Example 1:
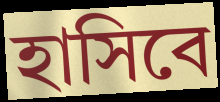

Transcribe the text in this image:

হাসিবে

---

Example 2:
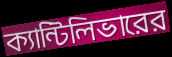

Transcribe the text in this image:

ক্যান্টিলিভারের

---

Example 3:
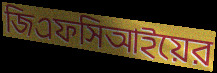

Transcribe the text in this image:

জিএফসিআইয়ের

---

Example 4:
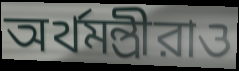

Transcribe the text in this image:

অর্থমন্ত্রীরাও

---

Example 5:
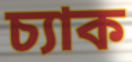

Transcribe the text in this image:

চ্যাক